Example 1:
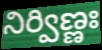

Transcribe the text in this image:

నిర్విణ్ణః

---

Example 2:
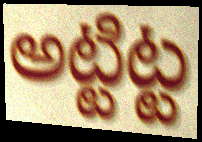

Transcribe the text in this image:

అట్టిట్ట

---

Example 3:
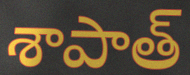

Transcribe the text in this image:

శాపాత్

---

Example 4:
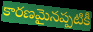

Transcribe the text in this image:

కారణమైనప్పటికీ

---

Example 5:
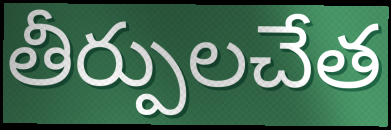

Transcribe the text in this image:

తీర్పులచేత